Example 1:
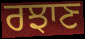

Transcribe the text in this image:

ਰਝਾਣ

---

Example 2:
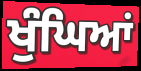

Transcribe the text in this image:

ਖੁੰਘਿਆਂ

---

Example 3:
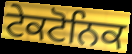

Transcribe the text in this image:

ਟੇਕਟੋਨਿਕ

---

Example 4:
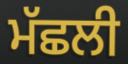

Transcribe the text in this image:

ਮੱਛਲੀ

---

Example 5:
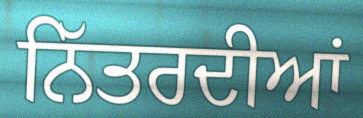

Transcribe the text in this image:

ਨਿੱਤਰਦੀਆਂ